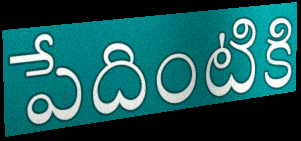
పేదింటికి